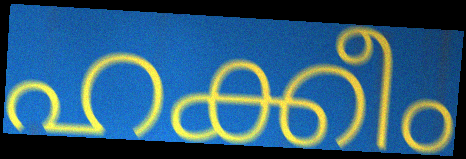
ഹക്കീം